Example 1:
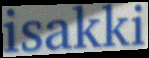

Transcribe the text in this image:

isakki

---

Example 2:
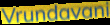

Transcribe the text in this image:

Vrundavani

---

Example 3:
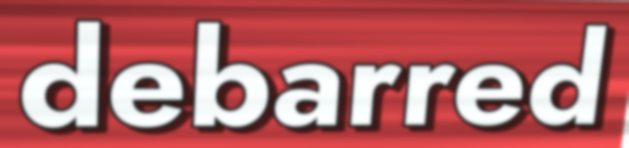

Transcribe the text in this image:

debarred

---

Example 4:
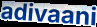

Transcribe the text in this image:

adivaani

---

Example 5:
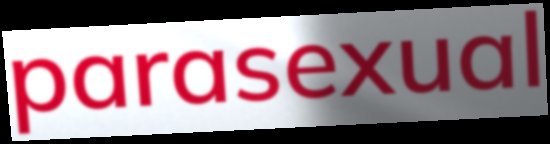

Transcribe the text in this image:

parasexual